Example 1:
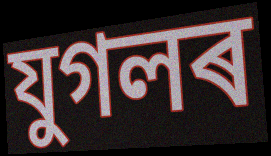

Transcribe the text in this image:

যুগলৰ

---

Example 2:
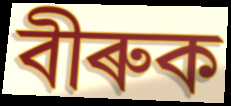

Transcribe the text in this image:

বীৰুক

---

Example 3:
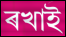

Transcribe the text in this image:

ৰখাই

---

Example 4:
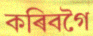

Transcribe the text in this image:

কৰিবগৈ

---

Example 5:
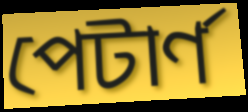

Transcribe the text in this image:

পেটাৰ্ণ